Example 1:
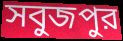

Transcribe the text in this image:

সবুজপুর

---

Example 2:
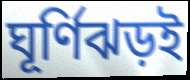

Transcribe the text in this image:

ঘূর্ণিঝড়ই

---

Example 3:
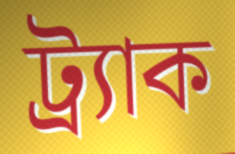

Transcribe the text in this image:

ট্র্যাক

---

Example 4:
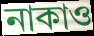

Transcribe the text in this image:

নাকাও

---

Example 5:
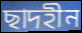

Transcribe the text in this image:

ছাদহীন